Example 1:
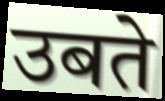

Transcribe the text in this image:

उबते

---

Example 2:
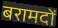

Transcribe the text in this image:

बरामदों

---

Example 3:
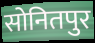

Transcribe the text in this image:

सोनितपुर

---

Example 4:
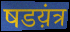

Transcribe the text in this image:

षडय़ंत्र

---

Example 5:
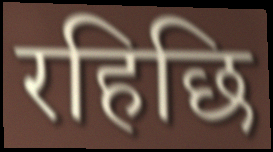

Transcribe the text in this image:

रहिछि